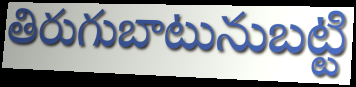
తిరుగుబాటునుబట్టి